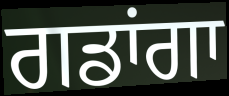
ਗਡਾਂਗਾ